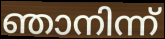
ഞാനിന്ന്